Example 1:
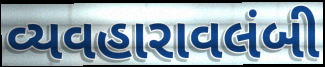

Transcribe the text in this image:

વ્યવહારાવલંબી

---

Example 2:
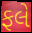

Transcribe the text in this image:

ફલે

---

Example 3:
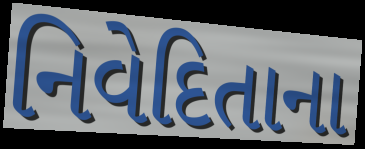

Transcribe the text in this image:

નિવેદિતાના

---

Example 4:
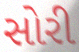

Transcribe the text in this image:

સોરી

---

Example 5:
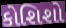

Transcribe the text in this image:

કોશિશો